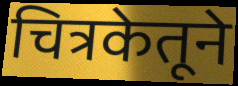
चित्रकेतूने